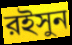
রইসুন